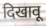
दिखावू